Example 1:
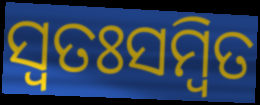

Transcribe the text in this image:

ସ୍ୱତଃସମ୍ବିତ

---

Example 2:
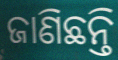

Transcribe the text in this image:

ଜାଣିଛନ୍ତି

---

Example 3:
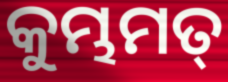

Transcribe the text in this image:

କୁମ୍ଭମତ୍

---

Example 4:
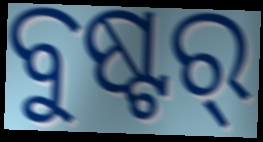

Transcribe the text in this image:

ବୁଷ୍ଟର୍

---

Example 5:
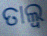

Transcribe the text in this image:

ତାଲ୍ୱ